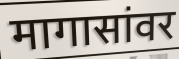
मागासांवर